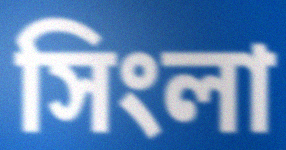
সিংলা